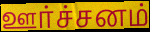
ஊர்ச்சனம்